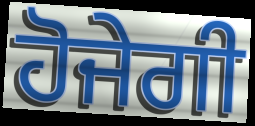
ਹੋਜੇਗੀ